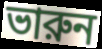
ভারুন